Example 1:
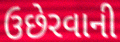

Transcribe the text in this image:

ઉછેરવાની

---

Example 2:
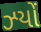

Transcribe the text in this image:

ઝ્યોં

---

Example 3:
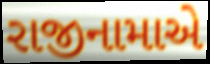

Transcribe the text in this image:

રાજીનામાએ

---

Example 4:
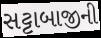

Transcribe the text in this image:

સટ્ટાબાજીની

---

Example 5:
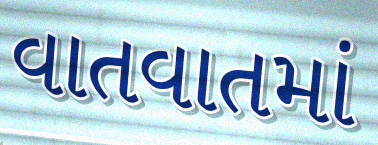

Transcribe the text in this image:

વાતવાતમાં